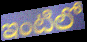
ఇంటిలో